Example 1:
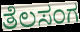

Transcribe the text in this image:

ತೆಲಸಂಗ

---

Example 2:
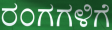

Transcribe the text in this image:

ರಂಗಗಳಿಗೆ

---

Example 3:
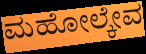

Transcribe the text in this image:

ಮಹೋಲ್ಕೇವ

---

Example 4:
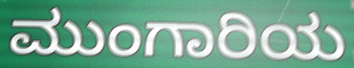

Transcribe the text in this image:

ಮುಂಗಾರಿಯ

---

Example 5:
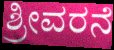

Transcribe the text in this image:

ಶ್ರೀವರನೆ